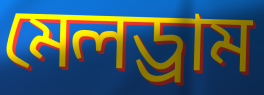
মেলড্রাম